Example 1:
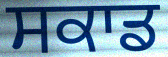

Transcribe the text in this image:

ਸਕਾਡ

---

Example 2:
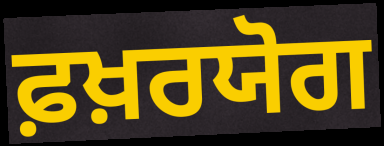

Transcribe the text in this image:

ਫ਼ਖ਼ਰਯੋਗ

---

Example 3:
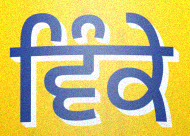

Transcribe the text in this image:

ਵਿੰਕੇ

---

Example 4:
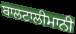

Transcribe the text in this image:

ਬਾਲਟਾਲੀਮਾਨੀ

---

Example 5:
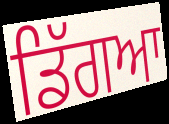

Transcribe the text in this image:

ਡਿੱਗਆ